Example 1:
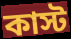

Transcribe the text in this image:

কাস্ট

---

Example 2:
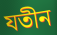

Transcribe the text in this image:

যতীন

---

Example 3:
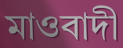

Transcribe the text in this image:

মাওবাদী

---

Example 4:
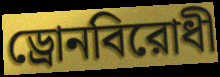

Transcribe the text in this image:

ড্রোনবিরোধী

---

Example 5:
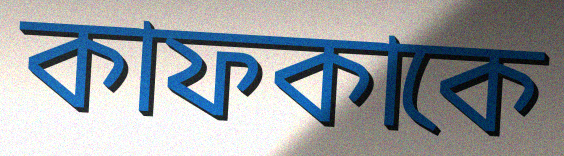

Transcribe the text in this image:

কাফকাকে